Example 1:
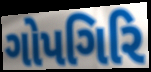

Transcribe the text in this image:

ગોપગિરિ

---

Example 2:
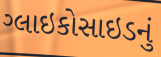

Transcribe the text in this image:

ગ્લાઇકોસાઇડનું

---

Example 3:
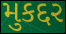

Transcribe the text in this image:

મુકદ્દર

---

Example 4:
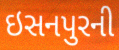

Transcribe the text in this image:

ઇસનપુરની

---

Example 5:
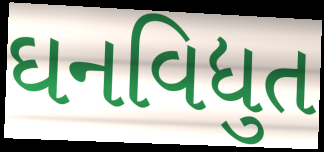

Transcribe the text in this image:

ઘનવિદ્યુત